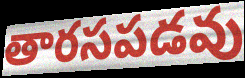
తారసపడవు